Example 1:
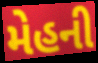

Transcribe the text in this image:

મેહની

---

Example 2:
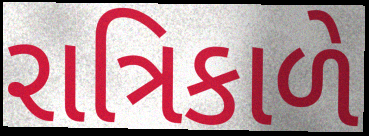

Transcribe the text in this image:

રાત્રિકાળે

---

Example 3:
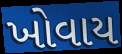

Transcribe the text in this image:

ખોવાય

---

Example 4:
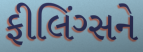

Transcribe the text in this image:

ફીલિંગ્સને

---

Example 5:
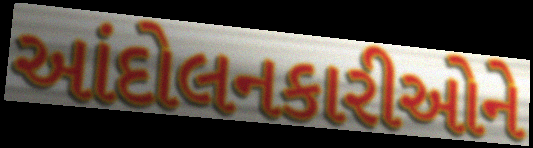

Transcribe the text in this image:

આંદોલનકારીઓને